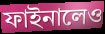
ফাইনালেও